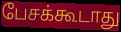
பேசக்கூடாது